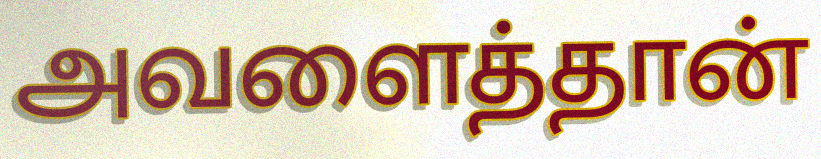
அவளைத்தான்